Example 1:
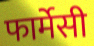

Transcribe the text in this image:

फार्मेसी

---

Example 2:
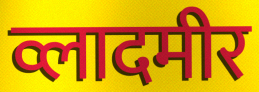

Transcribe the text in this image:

व्लादमीर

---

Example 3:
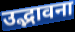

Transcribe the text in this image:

उद्भावना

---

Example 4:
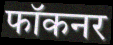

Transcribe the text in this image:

फॉकनर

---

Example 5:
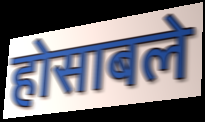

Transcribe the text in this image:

होसाबले